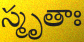
స్మృతాః